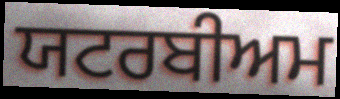
ਯਟਰਬੀਅਮ